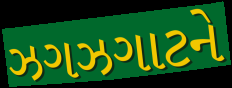
ઝગઝગાટને